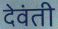
देवंती